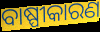
ବାଷ୍ପୀକାରଣ